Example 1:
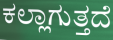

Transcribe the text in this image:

ಕಲ್ಲಾಗುತ್ತದೆ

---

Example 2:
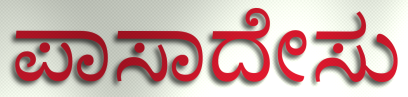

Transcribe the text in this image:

ಪಾಸಾದೇಸು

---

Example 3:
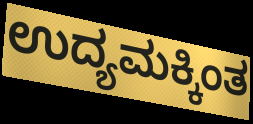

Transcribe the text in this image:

ಉದ್ಯಮಕ್ಕಿಂತ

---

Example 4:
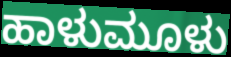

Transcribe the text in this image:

ಹಾಳುಮೂಳು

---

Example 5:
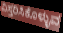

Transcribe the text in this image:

ವಿಸ್ತರಿಸಿಕೊಳ್ಳುವ